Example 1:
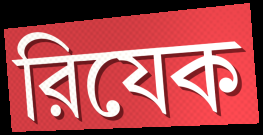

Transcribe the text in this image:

রিযেক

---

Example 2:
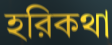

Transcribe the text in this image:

হরিকথা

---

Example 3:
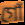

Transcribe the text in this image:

গোঁ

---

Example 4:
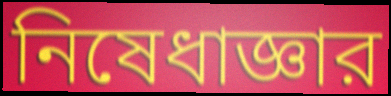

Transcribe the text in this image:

নিষেধাজ্ঞার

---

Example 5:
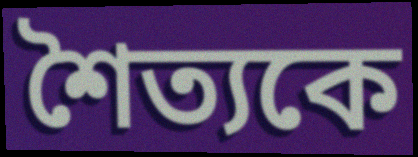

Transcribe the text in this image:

শৈত্যকে